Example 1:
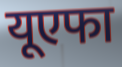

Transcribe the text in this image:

यूएफा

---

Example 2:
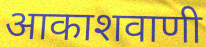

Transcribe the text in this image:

आकाशवाणी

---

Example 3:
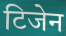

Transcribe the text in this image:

टिजेन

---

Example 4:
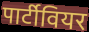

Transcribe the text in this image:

पार्टीवियर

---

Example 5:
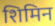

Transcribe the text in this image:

शिमिन